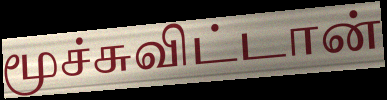
மூச்சுவிட்டான்